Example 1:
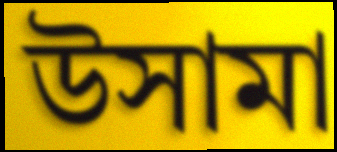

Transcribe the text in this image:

উসামা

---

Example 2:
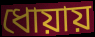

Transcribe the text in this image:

ধোয়ায়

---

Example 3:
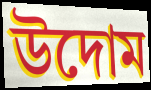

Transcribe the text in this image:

উদোম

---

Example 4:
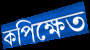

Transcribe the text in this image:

কপিক্ষেত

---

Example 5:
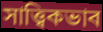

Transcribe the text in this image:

সাত্ত্বিকভাব